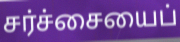
சர்ச்சையைப்